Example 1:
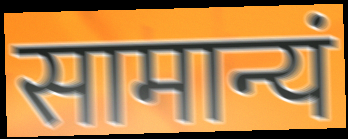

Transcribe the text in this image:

सामान्यं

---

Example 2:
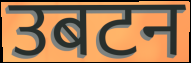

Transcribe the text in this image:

उबटन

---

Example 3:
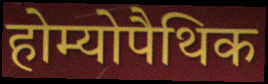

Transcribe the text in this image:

होम्‍योपैथिक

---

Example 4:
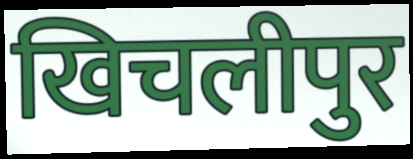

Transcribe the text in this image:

खिचलीपुर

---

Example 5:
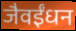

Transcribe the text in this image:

जैवईंधन